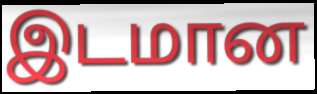
இடமான